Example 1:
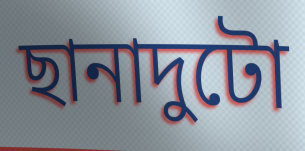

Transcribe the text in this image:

ছানাদুটো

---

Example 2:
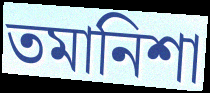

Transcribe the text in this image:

তমানিশা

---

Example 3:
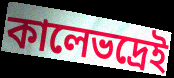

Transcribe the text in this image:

কালেভদ্রেই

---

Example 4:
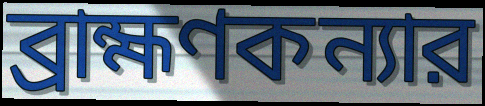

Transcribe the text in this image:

ব্রাহ্মণকন্যার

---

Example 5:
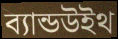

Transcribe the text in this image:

ব্যান্ডউইথ